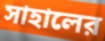
সাহালের